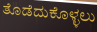
ತೊಡೆದುಕೊಳ್ಳಲು